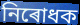
নিৰোধক